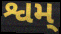
શ્વમ્